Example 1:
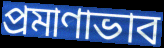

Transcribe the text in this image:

প্রমাণাভাব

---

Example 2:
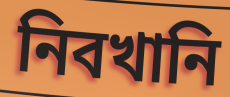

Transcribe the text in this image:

নিবখানি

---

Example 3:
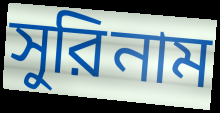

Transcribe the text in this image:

সুরিনাম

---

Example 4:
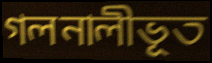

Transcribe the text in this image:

গলনালীভূত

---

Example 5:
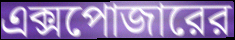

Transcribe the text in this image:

এক্সপোজারের